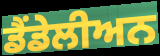
ਡੈਂਡੇਲੀਅਨ